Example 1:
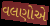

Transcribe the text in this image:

વલણોએ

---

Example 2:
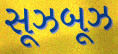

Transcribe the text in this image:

સૂઝબૂઝ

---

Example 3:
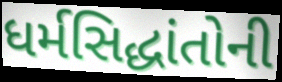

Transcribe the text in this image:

ધર્મસિદ્ધાંતોની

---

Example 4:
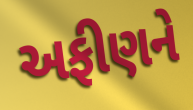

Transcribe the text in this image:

અફીણને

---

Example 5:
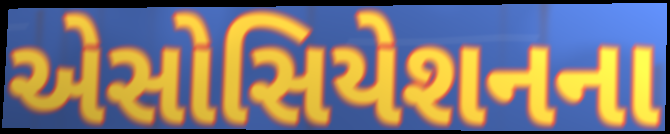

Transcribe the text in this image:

એસોસિયેશનના